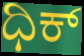
ಧಿಕ್